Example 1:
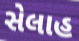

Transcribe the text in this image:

સેલાહ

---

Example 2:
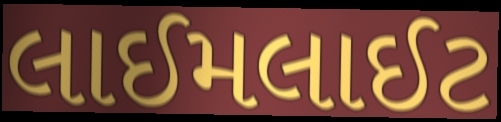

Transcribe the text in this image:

લાઈમલાઈટ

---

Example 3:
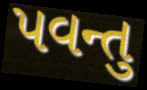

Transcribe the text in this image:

પવન્તુ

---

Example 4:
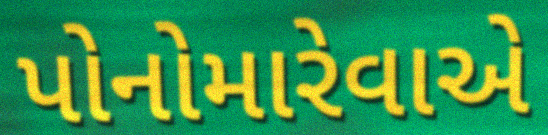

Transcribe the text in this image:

પોનોમારેવાએ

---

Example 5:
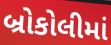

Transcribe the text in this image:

બ્રોકોલીમાં